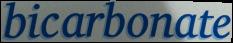
bicarbonate